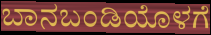
ಬಾನಬಂಡಿಯೊಳಗೆ